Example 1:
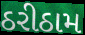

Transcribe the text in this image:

ઠરીઠામ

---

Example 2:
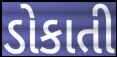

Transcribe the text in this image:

ડોકાતી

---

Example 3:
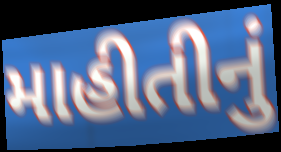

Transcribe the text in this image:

માહીતીનું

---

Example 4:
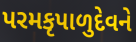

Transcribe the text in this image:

પરમકૃપાળુદેવને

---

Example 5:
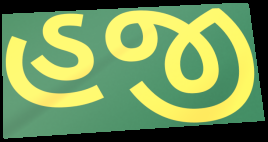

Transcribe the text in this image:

હજી